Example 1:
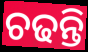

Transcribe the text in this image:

ଚଢନ୍ତି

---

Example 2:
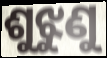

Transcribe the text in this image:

ଶୁଝୁଣୁ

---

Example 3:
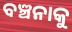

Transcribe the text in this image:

ବଞ୍ଚନାକୁ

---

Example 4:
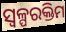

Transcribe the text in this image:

ସ୍ୱଳ୍ପରକ୍ତିମ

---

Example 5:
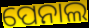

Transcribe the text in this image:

ପେନାଲ